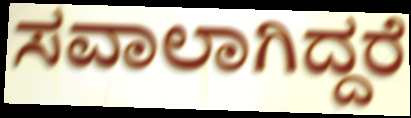
ಸವಾಲಾಗಿದ್ದರೆ